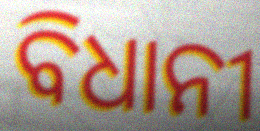
ବିଧାନୀ